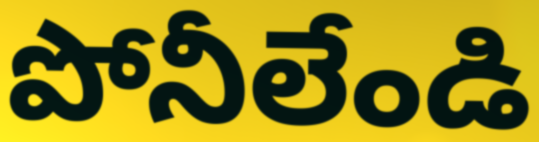
పోనీలేండి